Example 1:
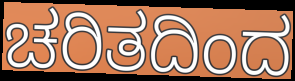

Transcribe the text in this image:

ಚರಿತದಿಂದ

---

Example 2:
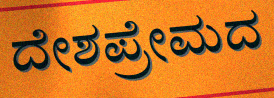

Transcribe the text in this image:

ದೇಶಪ್ರೇಮದ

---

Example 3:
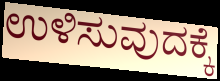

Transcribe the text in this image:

ಉಳಿಸುವುದಕ್ಕೆ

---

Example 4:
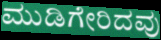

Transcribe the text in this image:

ಮುಡಿಗೇರಿದವು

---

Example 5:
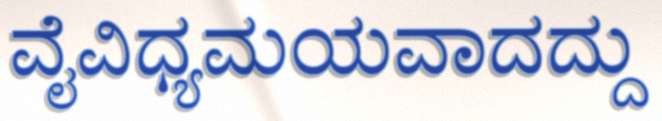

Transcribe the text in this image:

ವೈವಿಧ್ಯಮಯವಾದದ್ದು